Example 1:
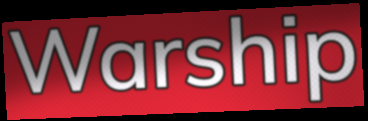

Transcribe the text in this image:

Warship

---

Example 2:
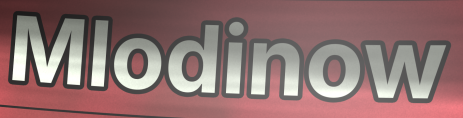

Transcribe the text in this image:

Mlodinow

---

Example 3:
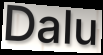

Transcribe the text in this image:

Dalu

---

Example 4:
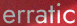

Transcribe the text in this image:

erratic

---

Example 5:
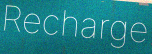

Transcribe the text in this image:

Recharge